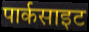
पार्कसाइट